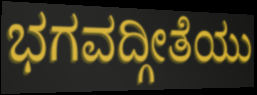
ಭಗವದ್ಗೀತೆಯು